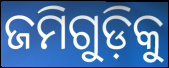
ଜମିଗୁଡ଼ିକୁ